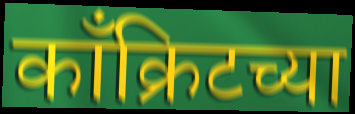
काँक्रिटच्या